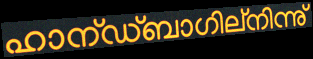
ഹാന്ഡ്ബാഗില്നിന്നു്